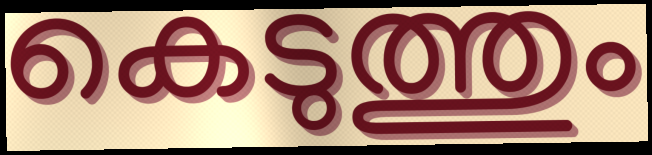
കെടുത്തും